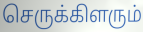
செருக்கிளரும்